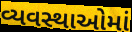
વ્યવસ્થાઓમાં